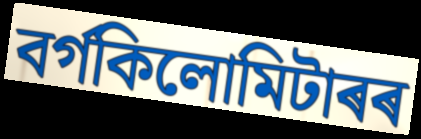
বৰ্গকিলোমিটাৰৰ